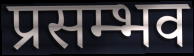
प्रसम्भव